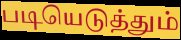
படியெடுத்தும்